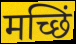
मच्छिं